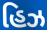
હિઝ